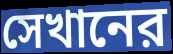
সেখানের